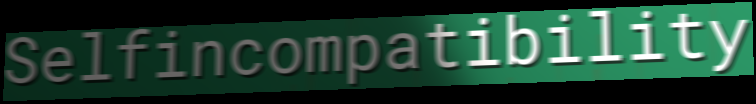
Selfincompatibility